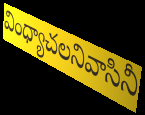
వింధ్యాచలనివాసినీ